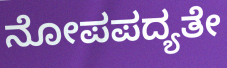
ನೋಪಪದ್ಯತೇ